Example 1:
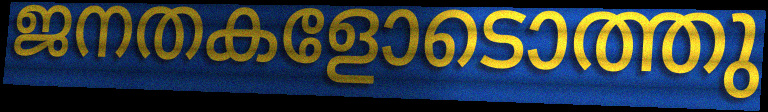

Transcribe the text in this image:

ജനതകളോടൊത്തു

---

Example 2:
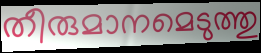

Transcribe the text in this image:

തീരുമാനമെടുത്തു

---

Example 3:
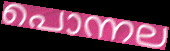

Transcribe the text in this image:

പൊന്നല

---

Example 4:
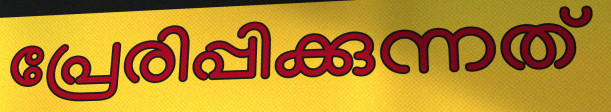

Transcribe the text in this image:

പ്രേരിപ്പിക്കുന്നത്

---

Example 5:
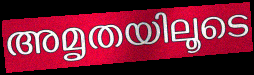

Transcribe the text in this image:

അമൃതയിലൂടെ